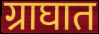
ग्राघात